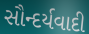
સૌન્દર્યવાદી